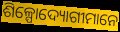
ଶିଳ୍ପୋଦ୍ୟୋଗୀମାନେ